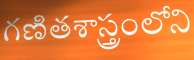
గణితశాస్త్రంలోని